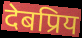
देबप्रिय